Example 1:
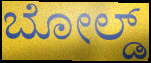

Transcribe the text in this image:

ಬೋಲ್ಡ್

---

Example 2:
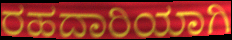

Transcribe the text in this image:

ರಹದಾರಿಯಾಗಿ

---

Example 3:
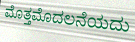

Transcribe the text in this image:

ಮೊತ್ತಮೊದಲನೆಯದು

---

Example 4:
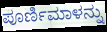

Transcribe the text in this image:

ಪೂರ್ಣಿಮಾಳನ್ನು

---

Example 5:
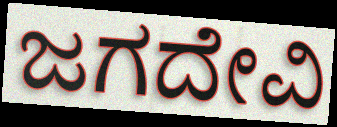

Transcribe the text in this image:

ಜಗದೇವಿ